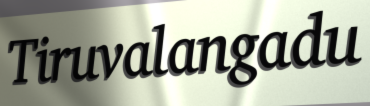
Tiruvalangadu